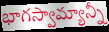
భాగస్వామ్యాన్నీ